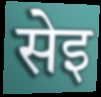
सेइ